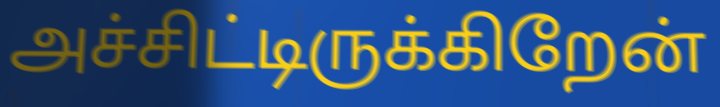
அச்சிட்டிருக்கிறேன்